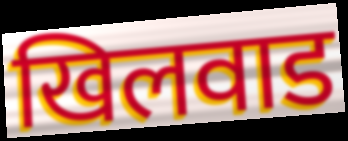
खिलवाड